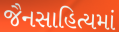
જૈનસાહિત્યમાં